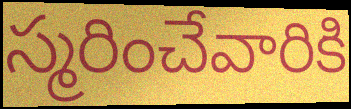
స్మరించేవారికి